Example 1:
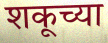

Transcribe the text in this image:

शकूच्या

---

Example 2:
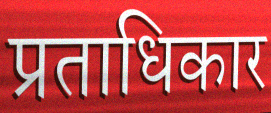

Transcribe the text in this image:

प्रताधिकार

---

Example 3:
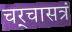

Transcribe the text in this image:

चर्चासत्रं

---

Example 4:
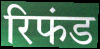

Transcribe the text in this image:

रिफंड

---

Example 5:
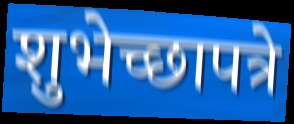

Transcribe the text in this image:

शुभेच्छापत्रे